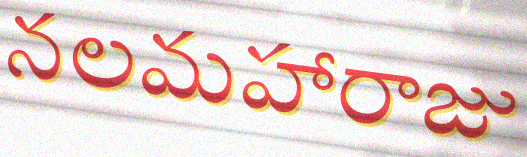
నలమహారాజు